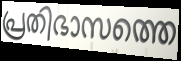
പ്രതിഭാസത്തെ